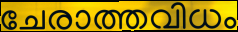
ചേരാത്തവിധം